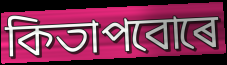
কিতাপবোৰে